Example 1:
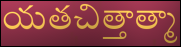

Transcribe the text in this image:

యతచిత్తాత్మా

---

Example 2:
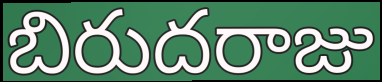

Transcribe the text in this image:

బిరుదరాజు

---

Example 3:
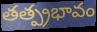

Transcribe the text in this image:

తత్ప్రభావం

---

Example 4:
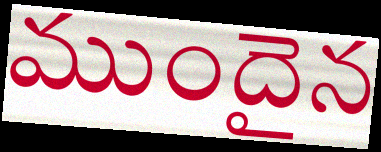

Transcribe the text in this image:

ముందైన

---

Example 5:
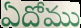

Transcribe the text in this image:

ఏదోము